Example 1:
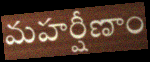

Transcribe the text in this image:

మహర్షీణాం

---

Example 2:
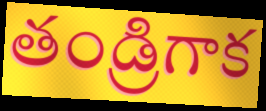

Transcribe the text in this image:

తండ్రిగాక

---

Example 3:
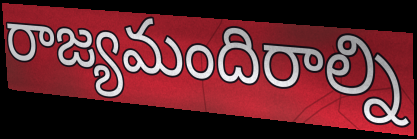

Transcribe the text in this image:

రాజ్యమందిరాల్ని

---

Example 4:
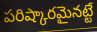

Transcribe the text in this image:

పరిష్కారమైనట్టే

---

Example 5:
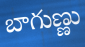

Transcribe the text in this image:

బాగుణ్ణు